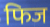
फिज